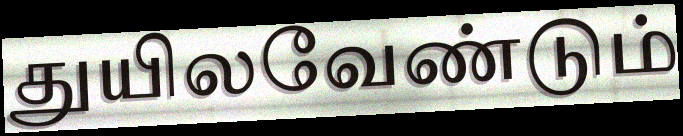
துயிலவேண்டும்